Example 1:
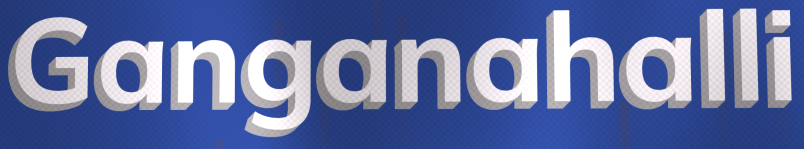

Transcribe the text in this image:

Ganganahalli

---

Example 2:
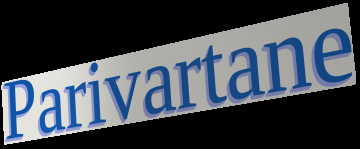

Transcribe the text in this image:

Parivartane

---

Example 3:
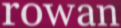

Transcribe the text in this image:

rowan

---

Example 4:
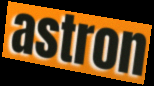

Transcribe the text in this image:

astron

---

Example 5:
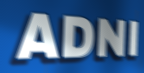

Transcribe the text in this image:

ADNI